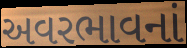
અવરભાવનાં